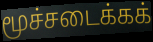
மூச்சடைக்கக்